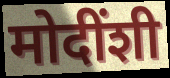
मोदींशी